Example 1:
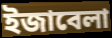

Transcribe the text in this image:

ইজাবেলা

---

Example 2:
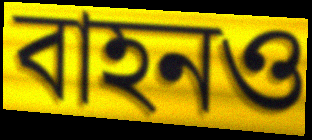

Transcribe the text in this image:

বাহনও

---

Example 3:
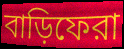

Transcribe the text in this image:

বাড়িফেরা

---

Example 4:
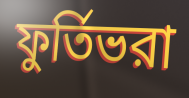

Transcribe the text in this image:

ফুর্তিভরা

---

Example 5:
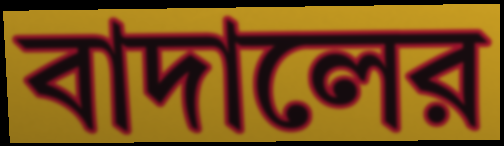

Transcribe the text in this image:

বাদালের